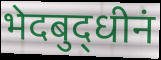
भेदबुद्धीनं